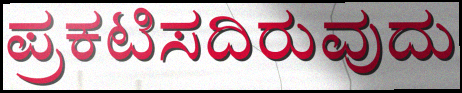
ಪ್ರಕಟಿಸದಿರುವುದು